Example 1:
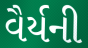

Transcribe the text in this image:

વૈર્યની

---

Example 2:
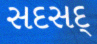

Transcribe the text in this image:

સદસદ્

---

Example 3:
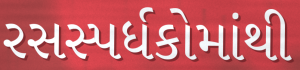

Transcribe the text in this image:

રસસ્પર્ધકોમાંથી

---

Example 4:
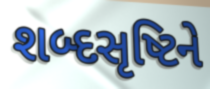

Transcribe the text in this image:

શબ્દસૃષ્ટિને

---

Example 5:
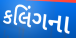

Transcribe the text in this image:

કલિંગના